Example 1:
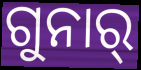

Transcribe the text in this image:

ଗୁନାର୍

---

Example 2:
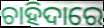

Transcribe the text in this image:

ଚାହିଦାରେ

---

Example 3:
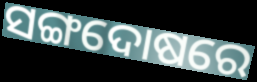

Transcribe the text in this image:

ସଙ୍ଗଦୋଷରେ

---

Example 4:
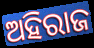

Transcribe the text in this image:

ଅହିରାଜ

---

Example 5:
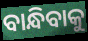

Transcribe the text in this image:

ବାନ୍ଧିବାକୁ